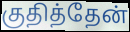
குதித்தேன்